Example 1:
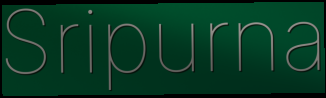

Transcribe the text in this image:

Sripurna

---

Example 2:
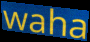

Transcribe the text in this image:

waha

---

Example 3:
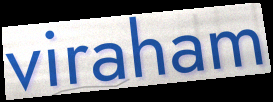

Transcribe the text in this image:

viraham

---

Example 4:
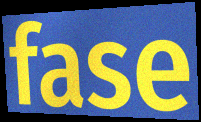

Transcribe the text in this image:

fase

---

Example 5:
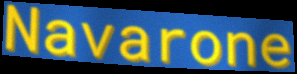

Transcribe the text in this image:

Navarone